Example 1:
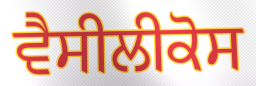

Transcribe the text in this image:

ਵੈਸੀਲੀਕੋਸ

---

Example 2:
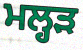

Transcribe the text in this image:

ਮਲ੍ਹੜ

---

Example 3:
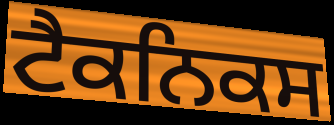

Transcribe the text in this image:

ਟੈਕਨਿਕਸ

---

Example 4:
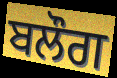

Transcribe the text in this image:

ਬਲੌਗ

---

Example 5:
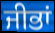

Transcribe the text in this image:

ਜੀਭਾਂ